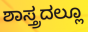
ಶಾಸ್ತ್ರದಲ್ಲೂ